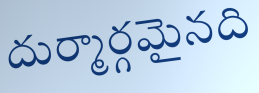
దుర్మార్గమైనది